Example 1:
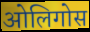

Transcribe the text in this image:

ओलिगोस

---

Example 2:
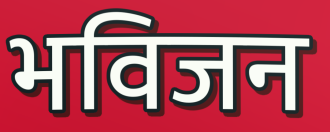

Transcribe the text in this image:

भविजन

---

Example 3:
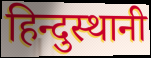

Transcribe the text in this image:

हिन्दुस्थानी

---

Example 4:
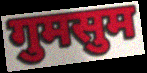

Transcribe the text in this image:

गुमसुम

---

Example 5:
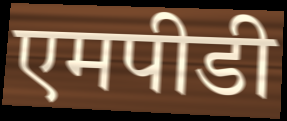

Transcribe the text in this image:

एमपीडी